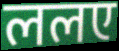
ललए